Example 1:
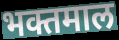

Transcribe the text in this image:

भक्तमाल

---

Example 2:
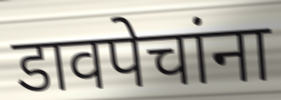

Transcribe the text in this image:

डावपेचांना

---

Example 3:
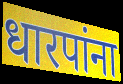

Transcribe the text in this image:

धारपांना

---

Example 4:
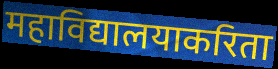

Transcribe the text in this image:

महाविद्यालयाकरिता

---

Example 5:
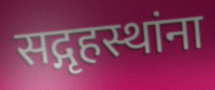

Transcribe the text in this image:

सद्गृहस्थांना